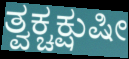
ತ್ವಕ್ಚಕ್ಷುಷೀ